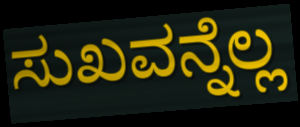
ಸುಖವನ್ನೆಲ್ಲ